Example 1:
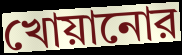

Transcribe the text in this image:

খোয়ানোর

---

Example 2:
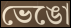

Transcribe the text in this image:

ভেঙো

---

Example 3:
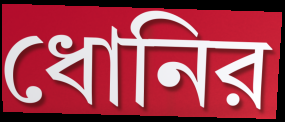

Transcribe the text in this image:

ধোনির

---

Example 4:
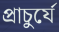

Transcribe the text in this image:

প্রাচুর্যে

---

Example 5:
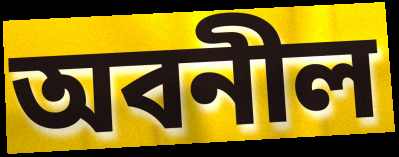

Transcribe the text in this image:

অবনীল